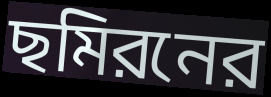
ছমিরনের